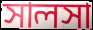
সালসা